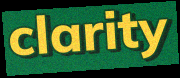
clarity